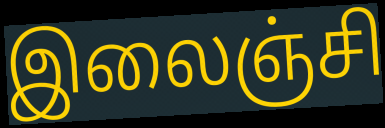
இலைஞ்சி